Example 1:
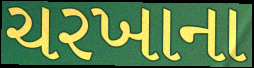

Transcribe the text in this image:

ચરખાના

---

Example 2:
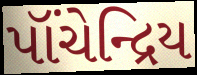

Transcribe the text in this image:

પૉંચેન્દ્રિય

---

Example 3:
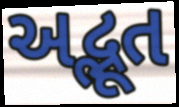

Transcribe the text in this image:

અદ્ભૂત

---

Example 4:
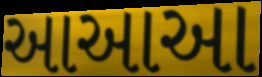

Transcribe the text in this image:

આઆઆ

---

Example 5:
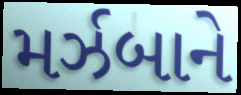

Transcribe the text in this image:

મર્ઝબાને